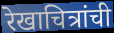
रेखाचित्रांची